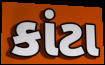
કાંટા